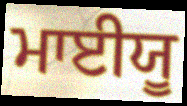
ਮਾਈਯੂ